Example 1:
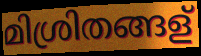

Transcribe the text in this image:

മിശ്രിതങ്ങള്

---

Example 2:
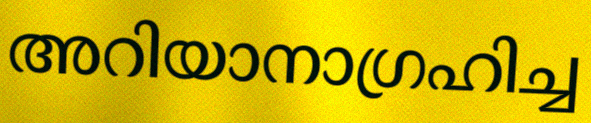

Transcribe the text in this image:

അറിയാനാഗ്രഹിച്ച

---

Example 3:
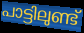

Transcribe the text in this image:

പാട്ടിലുണ്ട്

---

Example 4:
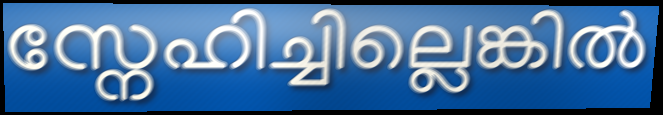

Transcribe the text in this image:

സ്നേഹിച്ചില്ലെങ്കിൽ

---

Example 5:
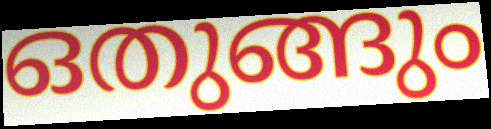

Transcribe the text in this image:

ഒതുങ്ങും